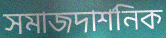
সমাজদার্শনিক